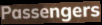
Passengers